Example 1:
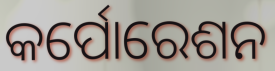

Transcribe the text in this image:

କର୍ପୋରେଶନ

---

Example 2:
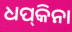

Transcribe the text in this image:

ଧପ୍‍କିନା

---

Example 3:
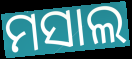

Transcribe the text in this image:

ମସାଲ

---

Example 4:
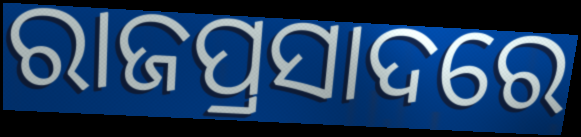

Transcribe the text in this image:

ରାଜପ୍ରସାଦରେ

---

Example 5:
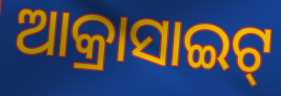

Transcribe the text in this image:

ଆକ୍ରାସାଇଟ୍